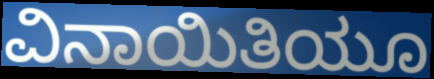
ವಿನಾಯಿತಿಯೂ